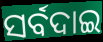
ସର୍ବଦାଇ